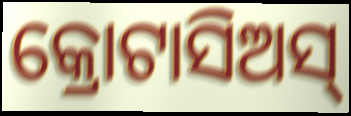
କ୍ରୋଟାସିଅସ୍